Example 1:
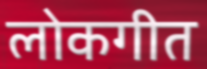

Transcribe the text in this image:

लोकगीत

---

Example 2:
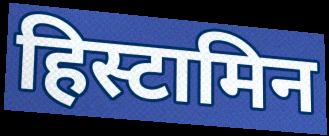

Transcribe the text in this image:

हिस्टामिन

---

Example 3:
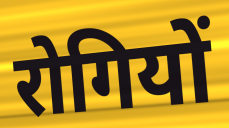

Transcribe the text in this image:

रोगियों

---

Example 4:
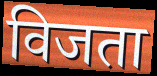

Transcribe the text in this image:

विजता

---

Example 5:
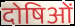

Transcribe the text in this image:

दोषिओं